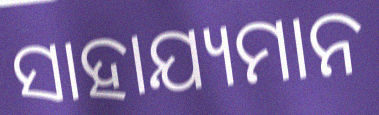
ସାହାଯ୍ୟମାନ